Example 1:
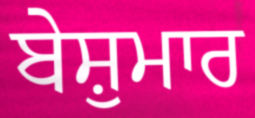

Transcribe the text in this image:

ਬੇਸ਼ੁਮਾਰ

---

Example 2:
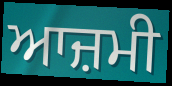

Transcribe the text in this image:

ਆਜ਼ਮੀ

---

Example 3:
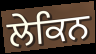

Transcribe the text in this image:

ਲੇਕਿਨ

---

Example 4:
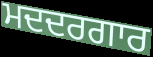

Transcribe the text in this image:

ਮਦਦਰਗਾਰ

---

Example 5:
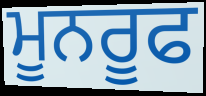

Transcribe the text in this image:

ਮੂਨਰੂਫ